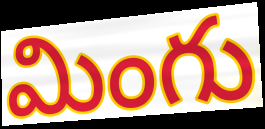
మింగు